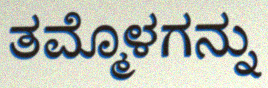
ತಮ್ಮೊಳಗನ್ನು